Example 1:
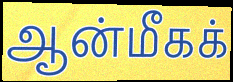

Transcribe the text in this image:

ஆன்மீகக்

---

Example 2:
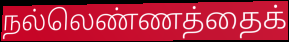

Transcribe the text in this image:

நல்லெண்ணத்தைக்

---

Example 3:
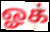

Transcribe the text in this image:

ஓக்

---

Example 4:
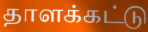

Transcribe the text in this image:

தாளக்கட்டு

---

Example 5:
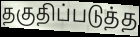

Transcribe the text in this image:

தகுதிப்படுத்த